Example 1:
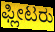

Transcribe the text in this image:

ಫ್ಲೀಟರು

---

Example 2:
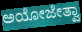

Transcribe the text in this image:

ಅಯೋಜೇತ್ವಾ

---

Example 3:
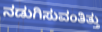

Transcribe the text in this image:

ನಡುಗಿಸುವಂತಿತ್ತು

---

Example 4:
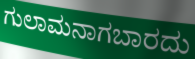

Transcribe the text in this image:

ಗುಲಾಮನಾಗಬಾರದು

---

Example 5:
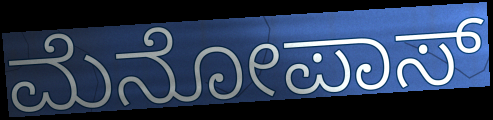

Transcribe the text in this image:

ಮೆನೋಪಾಸ್